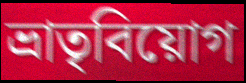
ভ্রাতৃবিয়োগ